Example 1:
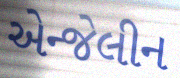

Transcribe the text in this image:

એન્જેલીન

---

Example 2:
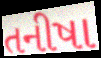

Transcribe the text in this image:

તનીષા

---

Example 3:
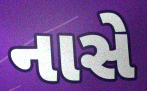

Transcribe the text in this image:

નાસે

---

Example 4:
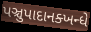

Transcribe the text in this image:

પઞ્ચુપાદાનક્ખન્ધે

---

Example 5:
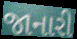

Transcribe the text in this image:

જાનારી